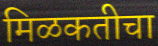
मिळकतीचा